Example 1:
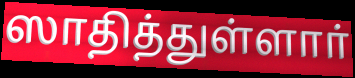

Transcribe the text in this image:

ஸாதித்துள்ளார்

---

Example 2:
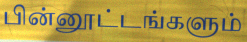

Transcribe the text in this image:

பின்னூட்டங்களும்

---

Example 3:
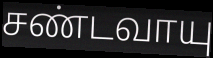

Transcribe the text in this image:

சண்டவாயு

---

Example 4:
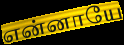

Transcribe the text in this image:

என்னாயே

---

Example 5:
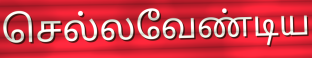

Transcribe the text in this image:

செல்லவேண்டிய